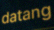
datang